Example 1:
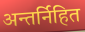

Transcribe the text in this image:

अन्तर्निहित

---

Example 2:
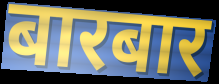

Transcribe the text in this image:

बारबार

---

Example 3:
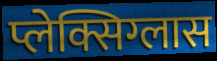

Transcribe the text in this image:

प्लेक्सिग्लास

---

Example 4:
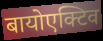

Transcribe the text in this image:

बायोएक्टिव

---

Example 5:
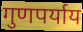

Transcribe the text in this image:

गुणपर्याय